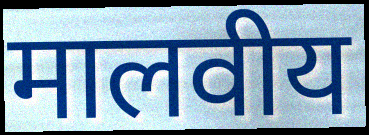
मालवीय